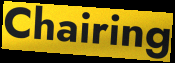
Chairing